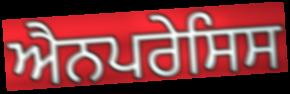
ਐਨਪਰੇਸਿਸ